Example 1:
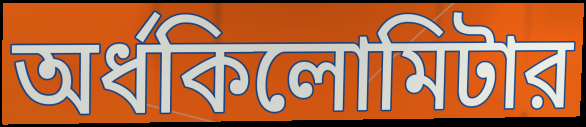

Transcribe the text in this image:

অর্ধকিলোমিটার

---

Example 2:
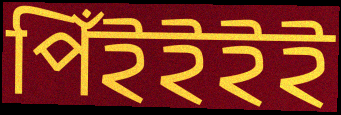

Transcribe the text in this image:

পিঁইইইই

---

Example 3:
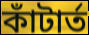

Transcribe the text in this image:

কাঁটার্ত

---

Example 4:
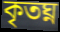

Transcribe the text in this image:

কৃতঘ্ন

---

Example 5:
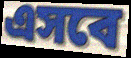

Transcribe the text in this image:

এসবে